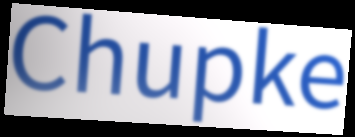
Chupke